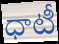
ధాటీ